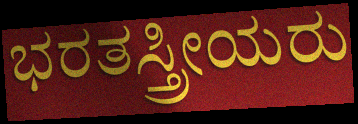
ಭರತಸ್ತ್ರೀಯರು